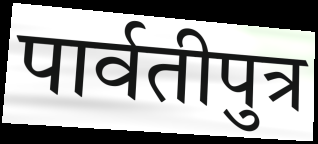
पार्वतीपुत्र